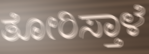
ತೋರಿಸ್ತಾಳೆ